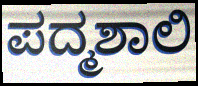
ಪದ್ಮಶಾಲಿ